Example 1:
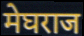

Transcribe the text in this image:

मेघराज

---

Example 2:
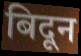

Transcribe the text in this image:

बिदून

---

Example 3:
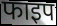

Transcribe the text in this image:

फाइप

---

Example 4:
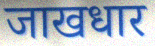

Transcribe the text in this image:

जाखधार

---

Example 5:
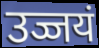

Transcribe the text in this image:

उज्जयं